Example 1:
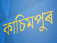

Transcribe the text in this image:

কাচিমপুৰ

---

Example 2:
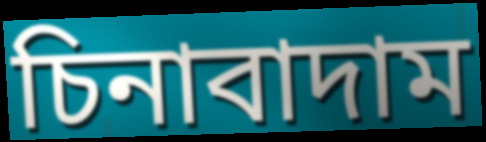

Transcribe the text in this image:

চিনাবাদাম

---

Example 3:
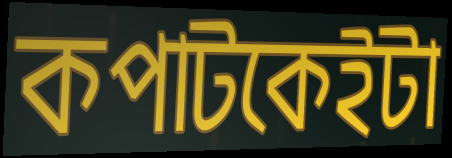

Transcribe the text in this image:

কপাটকেইটা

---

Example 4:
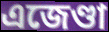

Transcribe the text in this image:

এজেণ্ডা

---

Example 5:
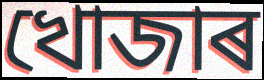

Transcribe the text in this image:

খোজাৰ